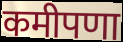
कमीपणा